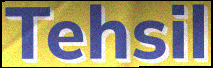
Tehsil